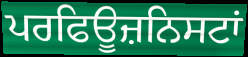
ਪਰਫਿਊਜ਼ਨਿਸਟਾਂ